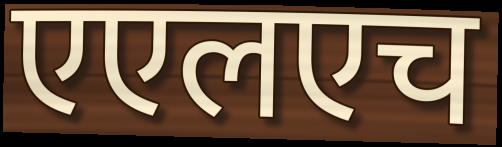
एएलएच